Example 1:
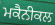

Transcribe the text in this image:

ਮਕੈਨੀਕਲ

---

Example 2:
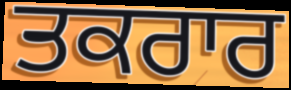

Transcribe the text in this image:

ਤਕਰਾਰ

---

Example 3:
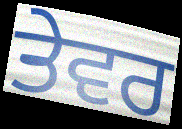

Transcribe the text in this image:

ਤੇਵਰ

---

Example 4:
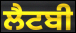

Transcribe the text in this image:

ਲੈਟਬੀ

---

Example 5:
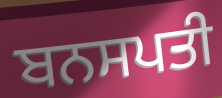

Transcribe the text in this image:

ਬਨਸਪਤੀ